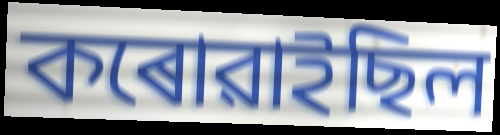
কৰোৱাইছিল